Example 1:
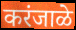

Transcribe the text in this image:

करंजाळे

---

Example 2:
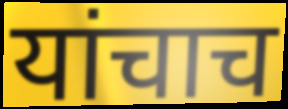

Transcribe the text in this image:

यांचाच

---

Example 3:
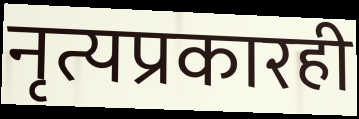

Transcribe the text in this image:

नृत्यप्रकारही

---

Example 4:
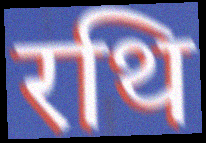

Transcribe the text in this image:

रथि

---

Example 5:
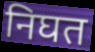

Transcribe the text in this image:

निघत